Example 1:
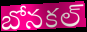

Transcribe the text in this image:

బోనకల్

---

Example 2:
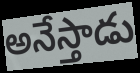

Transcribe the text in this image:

అనేస్తాడు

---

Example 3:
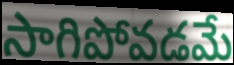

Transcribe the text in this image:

సాగిపోవడమే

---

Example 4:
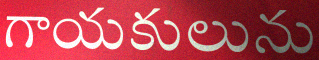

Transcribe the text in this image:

గాయకులును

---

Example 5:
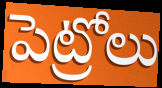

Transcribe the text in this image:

పెట్రోలు